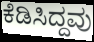
ಕೆಡಿಸಿದ್ದವು